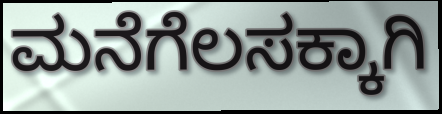
ಮನೆಗೆಲಸಕ್ಕಾಗಿ